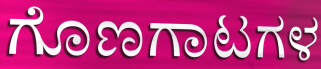
ಗೊಣಗಾಟಗಳ